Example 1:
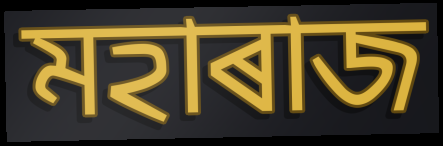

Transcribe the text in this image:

মহাৰাজ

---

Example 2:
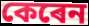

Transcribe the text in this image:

কেৰেন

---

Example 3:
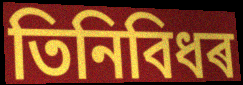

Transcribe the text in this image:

তিনিবিধৰ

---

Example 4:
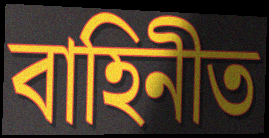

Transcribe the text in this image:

বাহিনীত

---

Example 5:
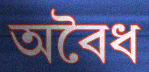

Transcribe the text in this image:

অবৈধ